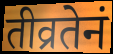
तीव्रतेनं